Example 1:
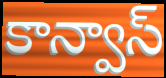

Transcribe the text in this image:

కాన్వాస్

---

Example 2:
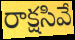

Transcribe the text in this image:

రాక్షసివే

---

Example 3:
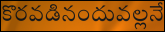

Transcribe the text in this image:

కొరవడినందువల్లనే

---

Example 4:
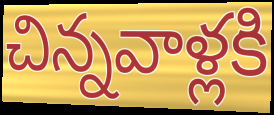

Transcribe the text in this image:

చిన్నవాళ్లకి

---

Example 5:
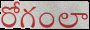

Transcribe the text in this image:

రోగంలా